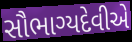
સૌભાગ્યદેવીએ